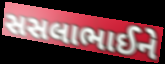
સસલાભાઈને